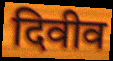
दिवीव